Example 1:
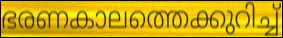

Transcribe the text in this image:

ഭരണകാലത്തെക്കുറിച്ച്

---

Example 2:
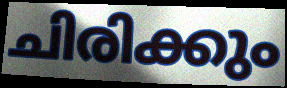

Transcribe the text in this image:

ചിരിക്കും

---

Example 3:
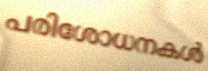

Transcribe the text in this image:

പരിശോധനകൾ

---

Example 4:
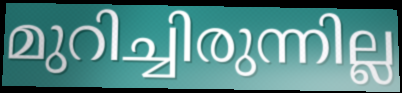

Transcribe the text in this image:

മുറിച്ചിരുന്നില്ല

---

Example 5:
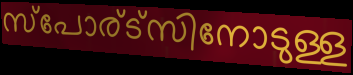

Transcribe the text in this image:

സ്പോര്ട്സിനോടുള്ള